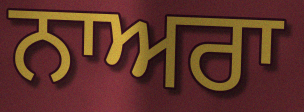
ਨਾਅਰਾ